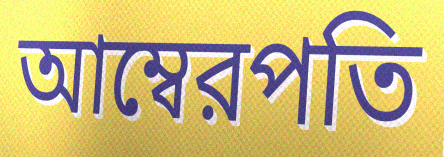
আম্বেরপতি